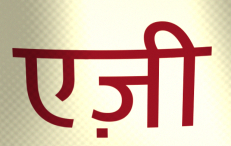
एज़ी